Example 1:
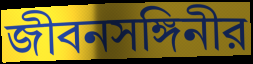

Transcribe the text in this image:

জীবনসঙ্গিনীর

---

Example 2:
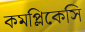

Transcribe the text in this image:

কমপ্লিকেসি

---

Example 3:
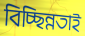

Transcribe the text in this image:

বিচ্ছিন্নতাই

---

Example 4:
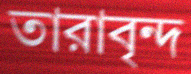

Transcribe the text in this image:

তারাবৃন্দ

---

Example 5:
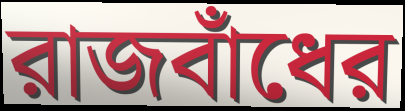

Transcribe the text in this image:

রাজবাঁধের